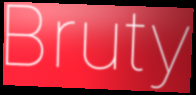
Bruty